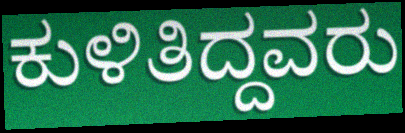
ಕುಳಿತಿದ್ದವರು